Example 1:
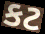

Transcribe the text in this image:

કટ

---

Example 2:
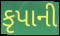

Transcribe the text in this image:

કૃપાની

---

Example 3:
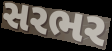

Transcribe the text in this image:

સરભર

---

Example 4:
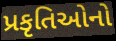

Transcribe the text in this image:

પ્રકૃતિઓનો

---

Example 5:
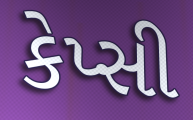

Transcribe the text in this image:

કેપ્સી